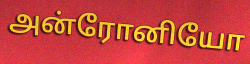
அன்ரோனியோ